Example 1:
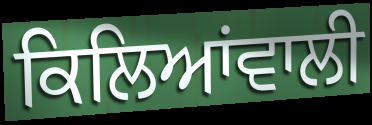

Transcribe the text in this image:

ਕਿਲਿਆਂਵਾਲੀ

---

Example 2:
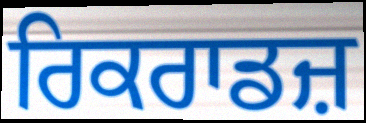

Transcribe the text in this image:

ਰਿਕਰਾਡਜ਼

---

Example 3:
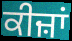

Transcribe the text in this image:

ਕੀਜ਼ਾਂ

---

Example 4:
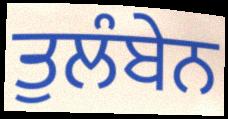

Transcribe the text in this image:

ਤੁਲੰਬੇਨ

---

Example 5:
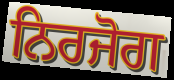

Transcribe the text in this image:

ਨਿਰਜੋਗ